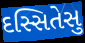
દસ્સિતેસુ